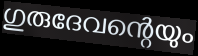
ഗുരുദേവന്റെയും